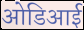
ओडिआई